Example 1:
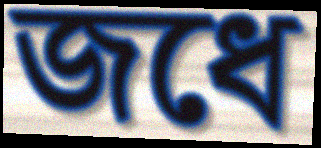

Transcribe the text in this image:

জধে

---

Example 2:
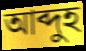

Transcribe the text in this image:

আব্দুহ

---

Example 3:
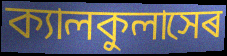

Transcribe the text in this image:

ক্যালকুলাসেৰ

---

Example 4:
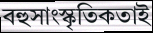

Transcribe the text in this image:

বহুসাংস্কৃতিকতাই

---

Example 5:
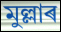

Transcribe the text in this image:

মুল্লাৰ